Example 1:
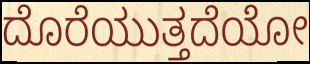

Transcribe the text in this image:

ದೊರೆಯುತ್ತದೆಯೋ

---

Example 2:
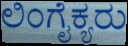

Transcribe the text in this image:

ಲಿಂಗೈಕ್ಯರು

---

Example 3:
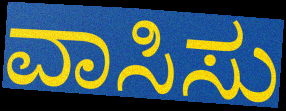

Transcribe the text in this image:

ವಾಸಿಸು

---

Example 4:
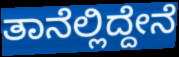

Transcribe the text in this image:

ತಾನೆಲ್ಲಿದ್ದೇನೆ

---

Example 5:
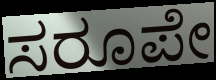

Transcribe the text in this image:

ಸರೂಪೇ